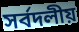
সর্বদলীয়